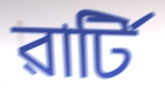
ৱাৰ্টি